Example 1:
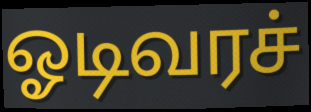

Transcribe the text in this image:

ஓடிவரச்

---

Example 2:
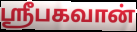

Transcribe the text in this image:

ஸ்ரீபகவான்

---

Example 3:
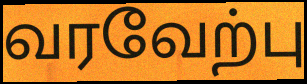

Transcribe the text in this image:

வரவேற்பு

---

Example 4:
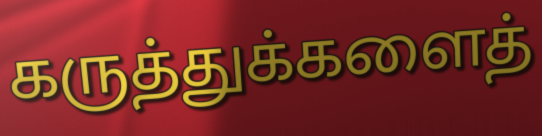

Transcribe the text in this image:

கருத்துக்களைத்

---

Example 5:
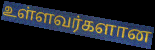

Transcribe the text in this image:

உள்ளவர்களான